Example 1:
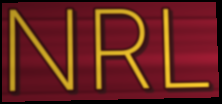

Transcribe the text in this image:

NRL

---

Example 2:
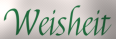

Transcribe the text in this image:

Weisheit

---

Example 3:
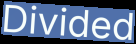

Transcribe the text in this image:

Divided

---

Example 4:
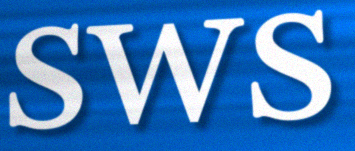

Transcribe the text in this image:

sws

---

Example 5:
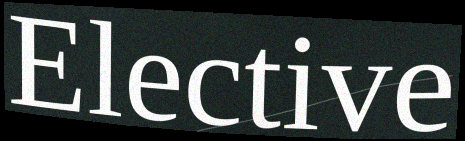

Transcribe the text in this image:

Elective